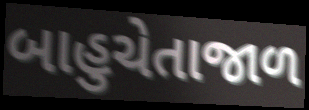
બાહુચેતાજાળ